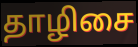
தாழிசை